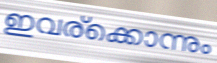
ഇവര്ക്കൊന്നും